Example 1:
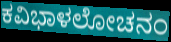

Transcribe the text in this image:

ಕವಿಭಾಳಲೋಚನಂ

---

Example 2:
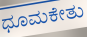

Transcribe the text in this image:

ಧೂಮಕೇತು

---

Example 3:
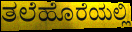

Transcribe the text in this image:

ತಲೆಹೊರೆಯಲ್ಲಿ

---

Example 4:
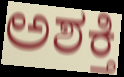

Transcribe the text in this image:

ಅಶಕ್ತಿ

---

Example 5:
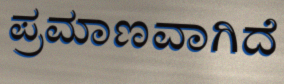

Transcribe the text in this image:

ಪ್ರಮಾಣವಾಗಿದೆ